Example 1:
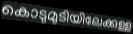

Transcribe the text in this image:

കൊടുമുടിയിലേക്കുള്ള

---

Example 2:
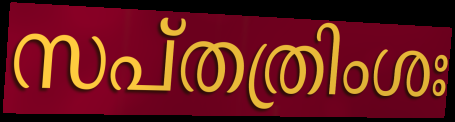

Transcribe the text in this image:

സപ്തത്രിംശഃ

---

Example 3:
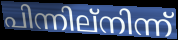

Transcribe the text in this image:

പിന്നില്നിന്ന്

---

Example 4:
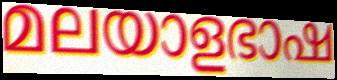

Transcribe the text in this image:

മലയാളഭാഷ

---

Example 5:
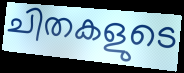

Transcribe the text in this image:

ചിതകളുടെ